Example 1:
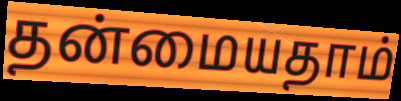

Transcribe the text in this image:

தன்மையதாம்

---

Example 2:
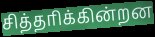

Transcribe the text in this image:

சித்தரிக்கின்றன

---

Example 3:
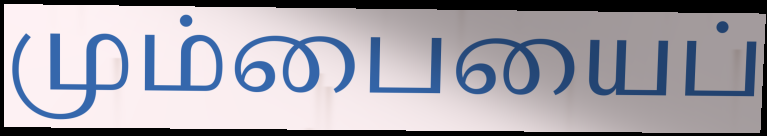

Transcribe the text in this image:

மும்பையைப்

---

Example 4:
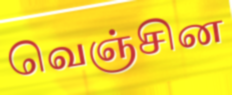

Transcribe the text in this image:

வெஞ்சின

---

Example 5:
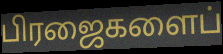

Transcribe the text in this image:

பிரஜைகளைப்